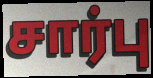
சார்பு